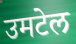
उमटेल